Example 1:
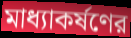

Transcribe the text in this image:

মাধ্যাকর্ষণের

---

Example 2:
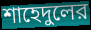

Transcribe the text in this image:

শাহেদুলের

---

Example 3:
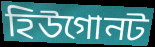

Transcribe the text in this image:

হিউগোনট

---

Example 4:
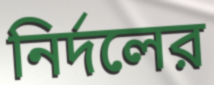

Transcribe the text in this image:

নির্দলের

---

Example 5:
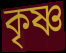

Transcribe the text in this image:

কৃষ্ণ